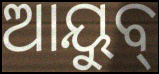
ଆୟୁବ୍